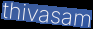
thivasam